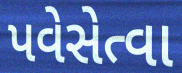
પવેસેત્વા